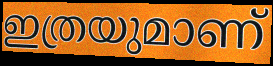
ഇത്രയുമാണ്